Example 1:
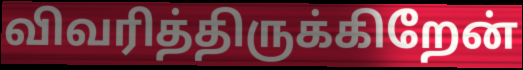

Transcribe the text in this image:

விவரித்திருக்கிறேன்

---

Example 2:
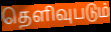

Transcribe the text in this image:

தெளிவுபடும்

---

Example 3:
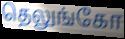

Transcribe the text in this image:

தெலுங்கோ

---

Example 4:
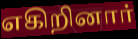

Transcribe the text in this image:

எகிறினார்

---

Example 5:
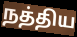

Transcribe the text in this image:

நத்திய